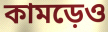
কামড়েও